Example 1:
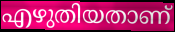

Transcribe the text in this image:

എഴുതിയതാണ്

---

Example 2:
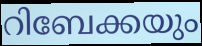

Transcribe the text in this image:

റിബേക്കയും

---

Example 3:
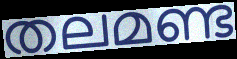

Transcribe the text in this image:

തലമണ്ട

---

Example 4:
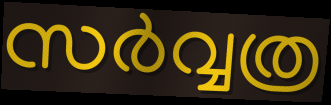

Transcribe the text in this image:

സർവ്വത്ര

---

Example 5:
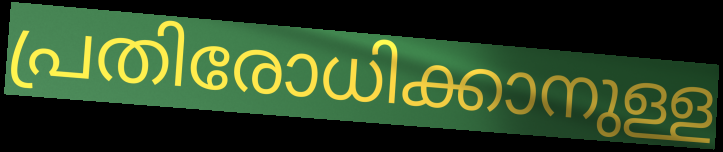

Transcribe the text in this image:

പ്രതിരോധിക്കാനുള്ള